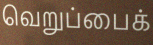
வெறுப்பைக்